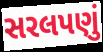
સરલપણું